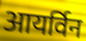
आयर्विन